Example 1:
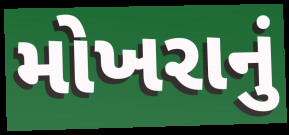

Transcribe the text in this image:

મોખરાનું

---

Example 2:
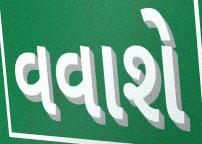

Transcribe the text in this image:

વવાશે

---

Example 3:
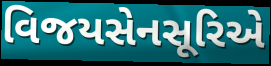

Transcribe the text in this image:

વિજયસેનસૂરિએ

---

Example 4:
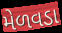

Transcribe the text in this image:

મેળવડા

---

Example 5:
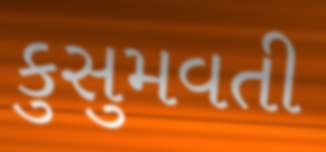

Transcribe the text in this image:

કુસુમવતી